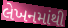
લેખનમાંથી